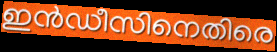
ഇൻഡീസിനെതിരെ